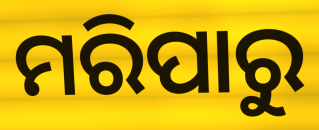
ମରିପାରୁ